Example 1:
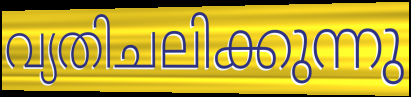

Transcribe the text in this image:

വ്യതിചലിക്കുന്നു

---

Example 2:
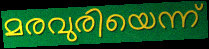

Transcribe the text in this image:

മരവുരിയെന്ന്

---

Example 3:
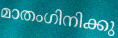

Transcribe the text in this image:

മാതംഗിനിക്കു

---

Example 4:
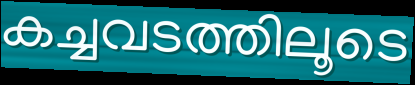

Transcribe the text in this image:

കച്ചവടത്തിലൂടെ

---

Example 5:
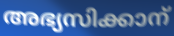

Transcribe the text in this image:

അഭ്യസിക്കാന്